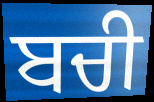
ਬਚੀ